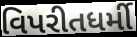
વિપરીતધર્મી